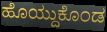
ಹೊಯ್ದುಕೊಂಡ